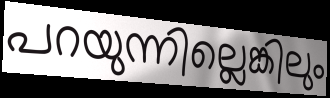
പറയുന്നില്ലെങ്കിലും